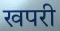
खपरी